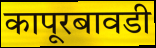
कापूरबावडी